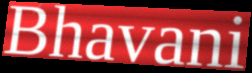
Bhavani